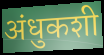
अंधुकशी